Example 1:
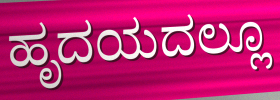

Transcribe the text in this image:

ಹೃದಯದಲ್ಲೂ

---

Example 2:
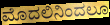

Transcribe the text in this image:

ಮೊದಲಿನಿಂದಲೂ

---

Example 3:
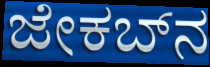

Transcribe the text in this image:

ಜೇಕಬ್‌ನ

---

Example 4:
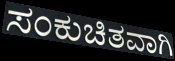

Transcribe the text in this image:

ಸಂಕುಚಿತವಾಗಿ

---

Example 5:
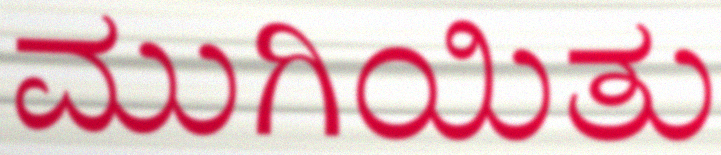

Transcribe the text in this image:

ಮುಗಿಯಿತು